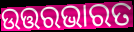
ଉତ୍ତରଭାରତ